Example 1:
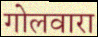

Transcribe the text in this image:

गोलवारा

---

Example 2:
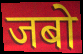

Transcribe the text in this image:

जबो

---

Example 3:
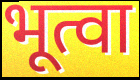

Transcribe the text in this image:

भूत्वा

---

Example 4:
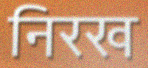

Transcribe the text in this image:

निरख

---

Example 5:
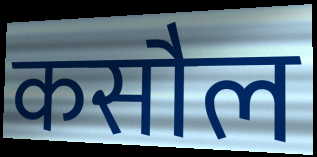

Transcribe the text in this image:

कसौल